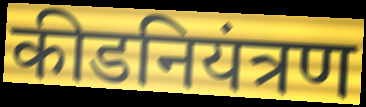
कीडनियंत्रण